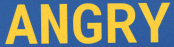
ANGRY